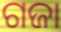
ଗଜା